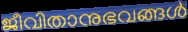
ജീവിതാനുഭവങ്ങൾ